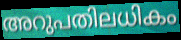
അറുപതിലധികം